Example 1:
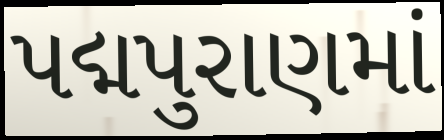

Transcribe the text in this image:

પદ્મપુરાણમાં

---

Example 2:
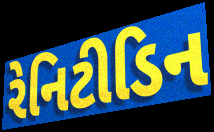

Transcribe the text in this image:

રેનિટીડિન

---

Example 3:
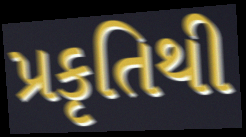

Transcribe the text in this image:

પ્રકૃતિથી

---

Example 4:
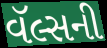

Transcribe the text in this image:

વૅલ્સની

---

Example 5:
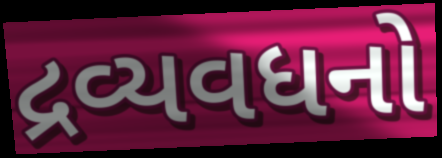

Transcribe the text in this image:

દ્રવ્યવધનો